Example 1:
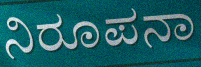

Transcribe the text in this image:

ನಿರೂಪನಾ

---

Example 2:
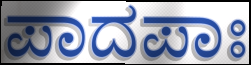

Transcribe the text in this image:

ಪಾದಪಾಃ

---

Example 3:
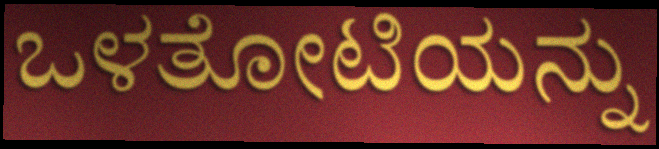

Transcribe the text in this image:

ಒಳತೋಟಿಯನ್ನು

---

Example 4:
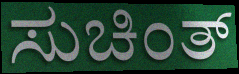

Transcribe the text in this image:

ಸುಚಿಂತ್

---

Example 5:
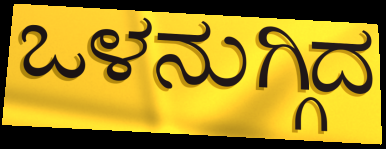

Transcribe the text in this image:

ಒಳನುಗ್ಗಿದ